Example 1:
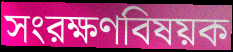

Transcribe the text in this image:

সংরক্ষণবিষয়ক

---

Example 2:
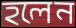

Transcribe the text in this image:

হলেন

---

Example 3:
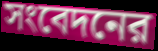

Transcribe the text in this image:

সংবেদনের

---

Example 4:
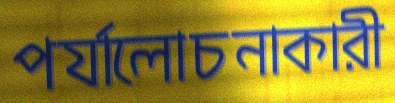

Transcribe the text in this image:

পর্যালোচনাকারী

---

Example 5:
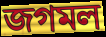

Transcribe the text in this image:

জগমল